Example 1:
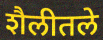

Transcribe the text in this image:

शैलीतले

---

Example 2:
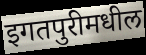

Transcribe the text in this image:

इगतपुरीमधील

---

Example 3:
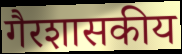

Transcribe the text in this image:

गैरशासकीय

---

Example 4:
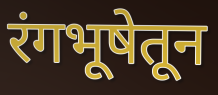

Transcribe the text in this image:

रंगभूषेतून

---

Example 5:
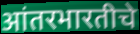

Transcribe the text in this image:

आंतरभारतीचे